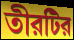
তীরটির